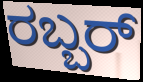
ರಬ್ಬರ್